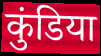
कुंडिया